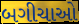
બગીચાઓ